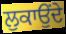
ਲੁਕਾਉਂਦੇ